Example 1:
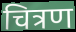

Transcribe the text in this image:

चित्रण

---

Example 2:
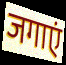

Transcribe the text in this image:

जगाएं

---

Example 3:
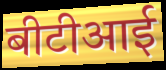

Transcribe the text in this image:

बीटीआई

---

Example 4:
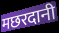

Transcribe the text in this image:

मछरदानी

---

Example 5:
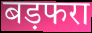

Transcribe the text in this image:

बड़फरा